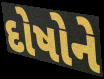
દોષોને